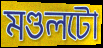
মণ্ডলটো